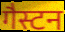
गैस्टन